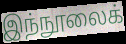
இந்நூலைக்